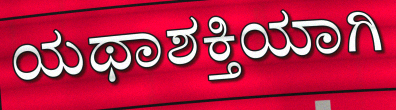
ಯಥಾಶಕ್ತಿಯಾಗಿ